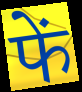
फें